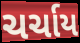
ચર્ચાય